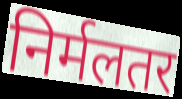
निर्मलतर